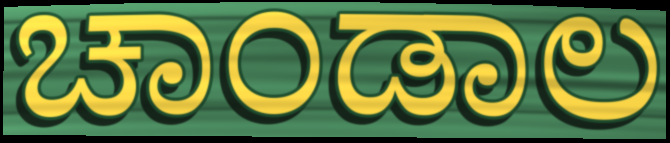
ಚಾಂಡಾಲ